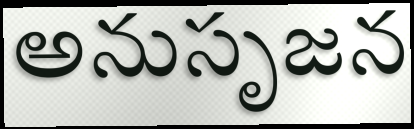
అనుసృజన